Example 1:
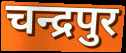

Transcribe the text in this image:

चन्द्रपुर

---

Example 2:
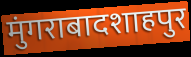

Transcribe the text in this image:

मुंगराबादशाहपुर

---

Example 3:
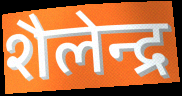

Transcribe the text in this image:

शैलेन्द्र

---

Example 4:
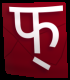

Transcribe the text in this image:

फ्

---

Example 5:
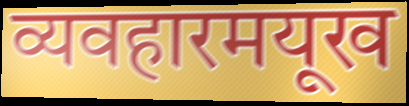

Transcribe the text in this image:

व्यवहारमयूख